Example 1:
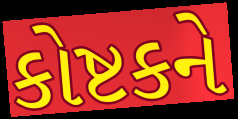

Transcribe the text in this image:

કોષ્ટકને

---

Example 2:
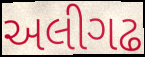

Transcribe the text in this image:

અલીગઢ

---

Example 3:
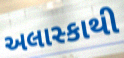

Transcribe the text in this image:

અલાસ્કાથી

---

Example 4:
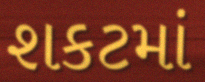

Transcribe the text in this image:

શકટમાં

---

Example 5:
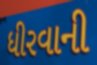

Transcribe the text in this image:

ધીરવાની